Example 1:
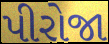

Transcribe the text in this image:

પીરોજા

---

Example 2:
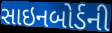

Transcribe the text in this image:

સાઇનબોર્ડની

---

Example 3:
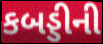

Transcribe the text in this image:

કબડ્ડીની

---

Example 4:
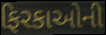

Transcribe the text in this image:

ફિરકાઓની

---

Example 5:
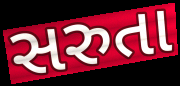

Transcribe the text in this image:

સરુતા